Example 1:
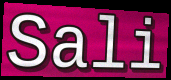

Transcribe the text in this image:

Sali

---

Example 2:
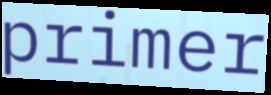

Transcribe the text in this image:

primer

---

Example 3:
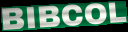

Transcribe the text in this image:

BIBCOL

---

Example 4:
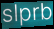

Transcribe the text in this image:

slprb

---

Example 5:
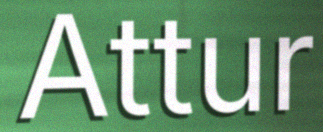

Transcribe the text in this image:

Attur